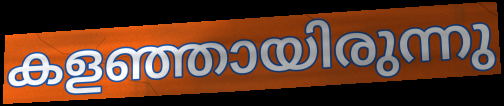
കളഞ്ഞായിരുന്നു